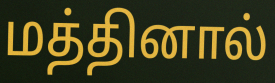
மத்தினால்